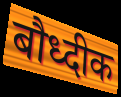
बौध्दीक